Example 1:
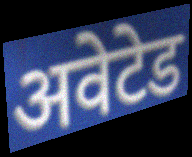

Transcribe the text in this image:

अवेटेड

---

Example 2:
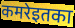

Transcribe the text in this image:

कमरेइतका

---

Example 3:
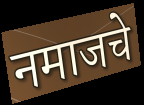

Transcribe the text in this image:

नमाजचे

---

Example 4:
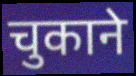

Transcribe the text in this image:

चुकाने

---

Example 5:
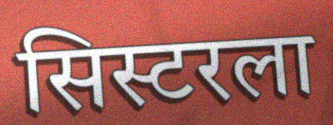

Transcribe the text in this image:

सिस्टरला